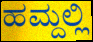
ಹಮ್ದಲ್ಲಿ